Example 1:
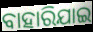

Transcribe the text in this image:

ବାହାରିଯାଇ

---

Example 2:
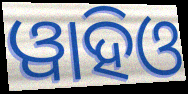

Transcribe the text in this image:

ୱାହିଓ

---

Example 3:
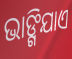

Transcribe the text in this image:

ଭାଙ୍ଗିଯାଏ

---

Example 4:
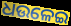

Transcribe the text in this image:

ଧଉଳେଇ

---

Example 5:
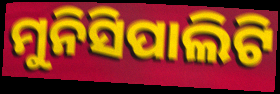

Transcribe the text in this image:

ମୁନିସିପାଲିଟି